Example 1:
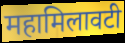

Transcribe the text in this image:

महामिलावटी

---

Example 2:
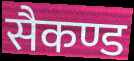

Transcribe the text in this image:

सैकण्ड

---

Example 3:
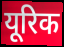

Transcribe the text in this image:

यूरिक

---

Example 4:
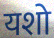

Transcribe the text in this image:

यशो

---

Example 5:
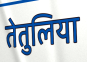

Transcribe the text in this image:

तेतुलिया